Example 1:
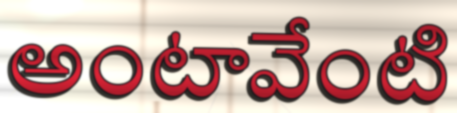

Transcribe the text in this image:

అంటావేంటి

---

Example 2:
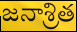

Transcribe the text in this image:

జనాశ్రిత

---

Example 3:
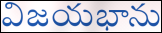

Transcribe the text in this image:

విజయభాను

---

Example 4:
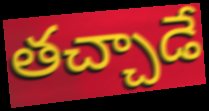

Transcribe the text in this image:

తచ్చాడే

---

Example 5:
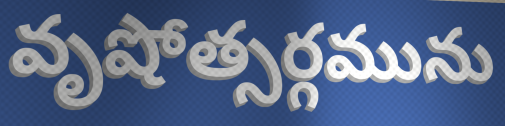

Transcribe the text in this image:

వృషోత్సర్గమును